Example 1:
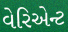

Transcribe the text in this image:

વેરિએન્ટ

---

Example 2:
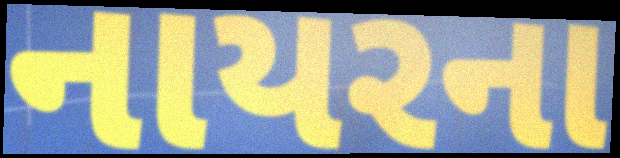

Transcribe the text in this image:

નાયરના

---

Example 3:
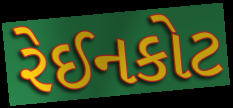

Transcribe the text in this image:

રેઈનકોટ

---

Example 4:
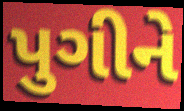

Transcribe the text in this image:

પુગીને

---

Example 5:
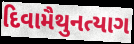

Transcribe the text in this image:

દિવામૈથુનત્યાગ